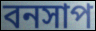
বনসাপ